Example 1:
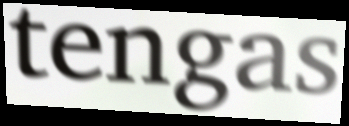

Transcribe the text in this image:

tengas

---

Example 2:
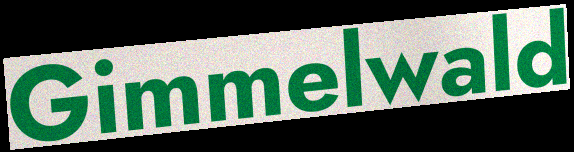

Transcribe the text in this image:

Gimmelwald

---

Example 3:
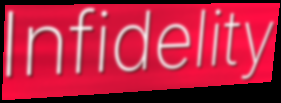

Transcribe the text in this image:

Infidelity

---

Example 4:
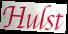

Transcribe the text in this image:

Hulst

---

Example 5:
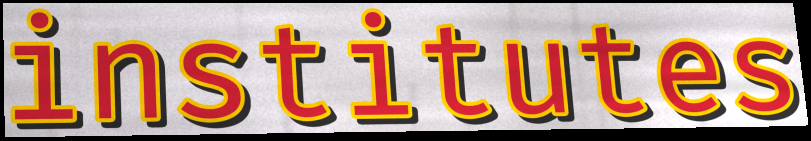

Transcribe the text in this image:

institutes